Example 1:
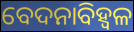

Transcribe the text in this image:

ବେଦନାବିହ୍ୱଳ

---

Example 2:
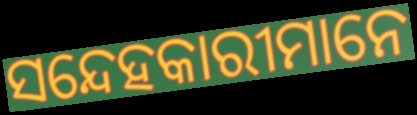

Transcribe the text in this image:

ସନ୍ଦେହକାରୀମାନେ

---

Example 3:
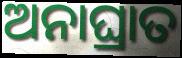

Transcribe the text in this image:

ଅନାଘ୍ରାତ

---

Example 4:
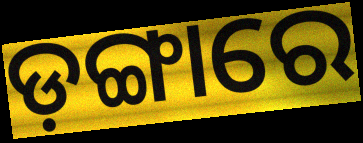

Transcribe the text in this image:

ଡ଼ଙ୍ଗାରେ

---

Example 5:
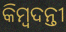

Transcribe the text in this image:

କିମ୍ଵଦନ୍ତୀ